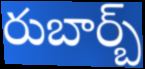
రుబార్బ్